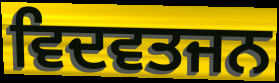
ਵਿਦਵਤਜਨ